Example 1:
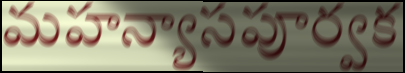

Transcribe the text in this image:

మహన్యాసపూర్వక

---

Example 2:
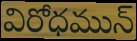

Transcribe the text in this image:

విరోధమున్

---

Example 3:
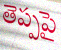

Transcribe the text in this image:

తెప్పపై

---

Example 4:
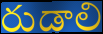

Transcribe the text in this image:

రుడాలి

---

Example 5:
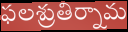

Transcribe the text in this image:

ఫలశ్రుతిర్నామ